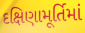
દક્ષિણામૂર્તિમાં